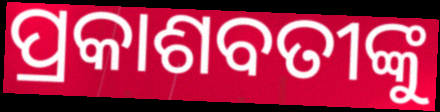
ପ୍ରକାଶବତୀଙ୍କୁ